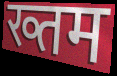
ख्तम